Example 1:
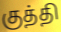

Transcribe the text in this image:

குத்தி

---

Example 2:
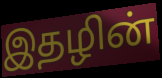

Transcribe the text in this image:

இதழின்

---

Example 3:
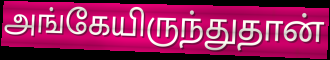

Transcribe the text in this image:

அங்கேயிருந்துதான்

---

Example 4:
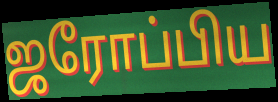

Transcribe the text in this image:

ஜரோப்பிய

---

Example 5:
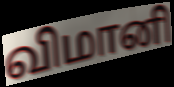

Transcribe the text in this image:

விமானி